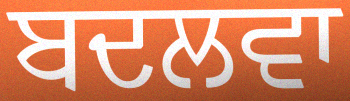
ਬਦਲਵਾ